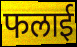
फलाई